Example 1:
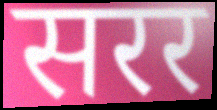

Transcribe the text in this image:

सरर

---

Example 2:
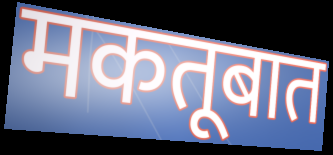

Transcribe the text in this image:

मकतूबात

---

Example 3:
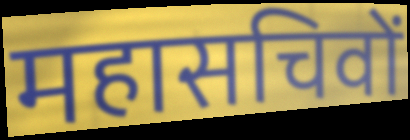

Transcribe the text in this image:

महासचिवों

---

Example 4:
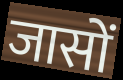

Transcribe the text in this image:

जासों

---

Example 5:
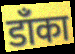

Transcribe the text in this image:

डाँका